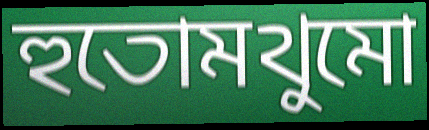
হুতোমথুমো